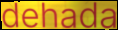
dehada